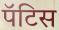
पॅटिस